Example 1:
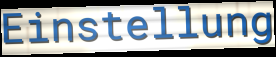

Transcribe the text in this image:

Einstellung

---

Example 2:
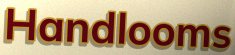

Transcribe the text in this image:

Handlooms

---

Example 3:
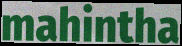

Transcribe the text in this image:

mahintha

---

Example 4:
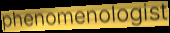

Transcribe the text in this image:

phenomenologist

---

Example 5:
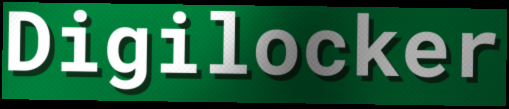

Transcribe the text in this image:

Digilocker